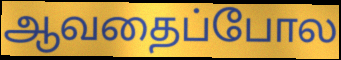
ஆவதைப்போல